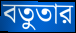
বতুতার